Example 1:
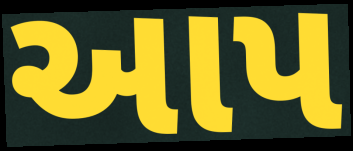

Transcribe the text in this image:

આપ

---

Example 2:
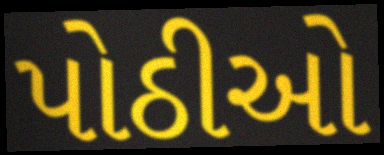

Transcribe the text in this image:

પોઠીઓ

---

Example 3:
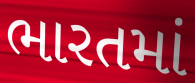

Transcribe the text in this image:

ભારતમાં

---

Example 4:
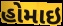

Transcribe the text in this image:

હોમાઇ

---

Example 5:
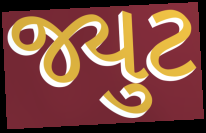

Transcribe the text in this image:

જ્યુટ